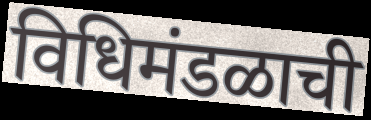
विधिमंडळाची